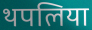
थपलिया